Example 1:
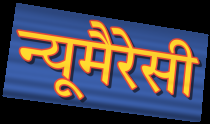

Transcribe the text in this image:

न्यूमैरेसी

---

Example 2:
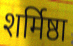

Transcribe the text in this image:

शर्मिष्ठा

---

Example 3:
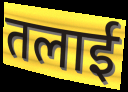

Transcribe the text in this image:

तलाई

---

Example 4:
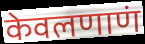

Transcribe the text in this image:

केवलणाणं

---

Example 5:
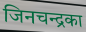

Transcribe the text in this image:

जिनचन्द्रका